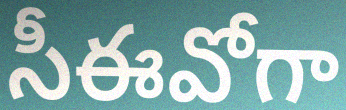
సీఈవోగా